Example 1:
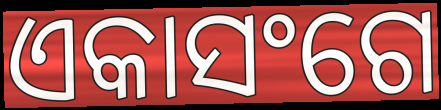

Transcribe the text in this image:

ଏକାସଂଗେ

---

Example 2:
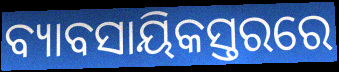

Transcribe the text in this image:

ବ୍ୟାବସାୟିକସ୍ତରରେ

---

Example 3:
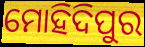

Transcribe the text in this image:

ମୋହିଦିପୁର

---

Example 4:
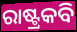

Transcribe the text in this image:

ରାଷ୍ଟ୍ରକବି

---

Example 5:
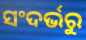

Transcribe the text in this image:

ସଂଦର୍ଭରୁ